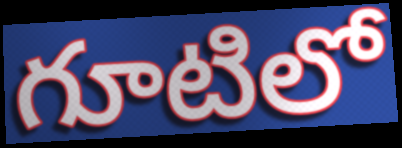
గూటిలో